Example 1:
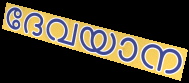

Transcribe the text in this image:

ദേവയാന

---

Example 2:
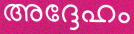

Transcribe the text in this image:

അദ്ദേഹം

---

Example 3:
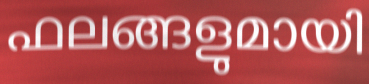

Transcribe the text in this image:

ഫലങ്ങളുമായി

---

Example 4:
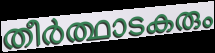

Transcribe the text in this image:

തീർത്ഥാടകരും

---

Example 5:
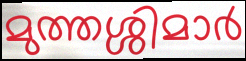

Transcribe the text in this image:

മുത്തശ്ശിമാർ